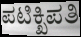
ಪಟಿಕ್ಖಿಪತಿ